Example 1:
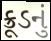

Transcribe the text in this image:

ક્રૂડનું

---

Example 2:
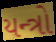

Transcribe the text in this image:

યન્ત્રો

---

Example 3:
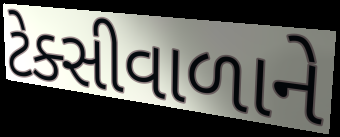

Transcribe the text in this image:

ટેક્સીવાળાને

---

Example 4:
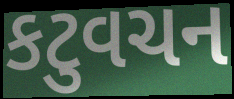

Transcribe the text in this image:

કટુવચન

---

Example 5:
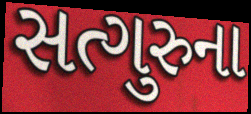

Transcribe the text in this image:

સત્ગુરુના